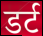
डर्ट